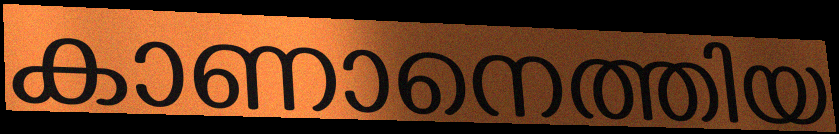
കാണാനെത്തിയ